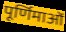
पूर्णिमाओं